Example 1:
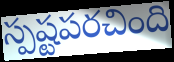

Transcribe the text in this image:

స్పష్టపరచింది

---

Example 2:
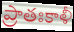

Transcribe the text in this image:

ప్రాతఃకాళీ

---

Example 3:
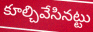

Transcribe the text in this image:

కూల్చివేసినట్టు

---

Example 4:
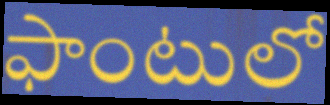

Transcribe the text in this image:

ఫాంటులో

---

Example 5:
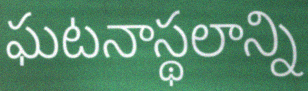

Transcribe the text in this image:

ఘటనాస్థలాన్ని